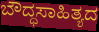
ಬೌದ್ಧಸಾಹಿತ್ಯದ